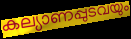
കല്യാണപ്പുടവയും